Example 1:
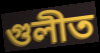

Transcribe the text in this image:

গুলীত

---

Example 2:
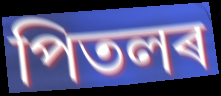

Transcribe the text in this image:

পিতলৰ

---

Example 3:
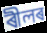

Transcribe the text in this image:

ৰীলৰ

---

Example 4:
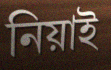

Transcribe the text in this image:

নিয়াই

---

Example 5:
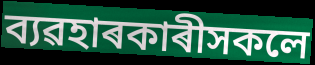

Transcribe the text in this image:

ব্যৱহাৰকাৰীসকলে